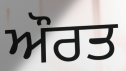
ਔਰਤ